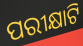
ପରୀକ୍ଷାଟି